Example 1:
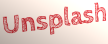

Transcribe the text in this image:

Unsplash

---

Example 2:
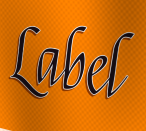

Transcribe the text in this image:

Label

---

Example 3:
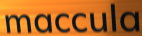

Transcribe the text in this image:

maccula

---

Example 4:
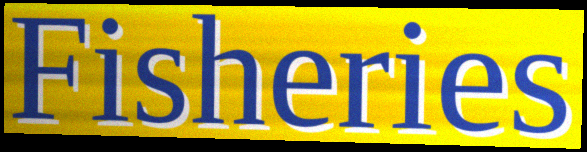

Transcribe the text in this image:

Fisheries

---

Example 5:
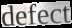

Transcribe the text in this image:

defect